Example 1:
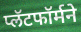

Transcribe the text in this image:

प्लॅटफॉर्मने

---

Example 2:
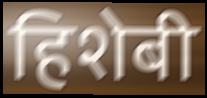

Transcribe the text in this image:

हिशेबी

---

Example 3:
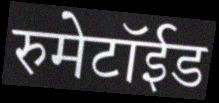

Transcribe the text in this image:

रुमेटॉईड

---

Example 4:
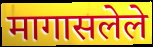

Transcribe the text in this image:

मागासलेले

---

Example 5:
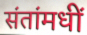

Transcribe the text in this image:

संतांमधीं